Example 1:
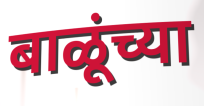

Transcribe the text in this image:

बाळूंच्या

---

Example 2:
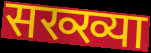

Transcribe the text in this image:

सख्ख्या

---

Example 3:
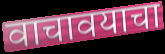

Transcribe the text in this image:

वाचावयाचा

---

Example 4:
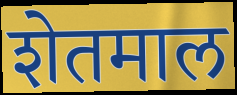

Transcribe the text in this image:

शेतमाल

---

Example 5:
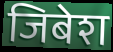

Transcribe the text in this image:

जिबेश